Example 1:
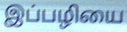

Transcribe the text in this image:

இப்பழியை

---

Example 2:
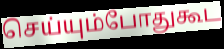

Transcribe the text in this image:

செய்யும்போதுகூட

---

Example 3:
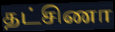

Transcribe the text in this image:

தட்சிணா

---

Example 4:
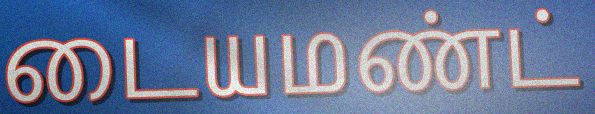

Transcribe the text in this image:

டையமண்ட்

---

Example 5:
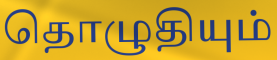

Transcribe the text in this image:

தொழுதியும்